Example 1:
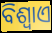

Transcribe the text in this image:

ବିଶ୍ୱାଏ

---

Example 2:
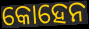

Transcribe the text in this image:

କୋହେନ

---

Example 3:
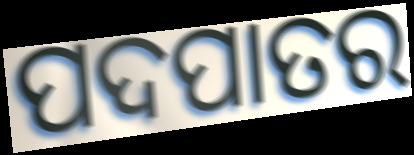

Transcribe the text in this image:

ପଦପାତର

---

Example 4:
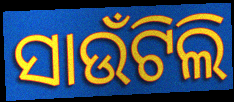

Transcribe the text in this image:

ସାଉଁଟିଲି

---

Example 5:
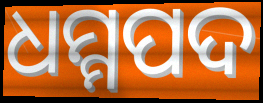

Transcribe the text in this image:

ଧମ୍ମପଦ